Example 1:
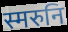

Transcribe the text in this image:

स्मरुनि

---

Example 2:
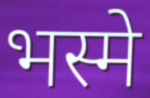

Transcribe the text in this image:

भस्मे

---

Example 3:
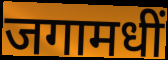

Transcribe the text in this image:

जगामधीं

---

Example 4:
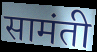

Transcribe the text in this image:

सामंती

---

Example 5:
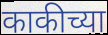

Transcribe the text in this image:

काकीच्या